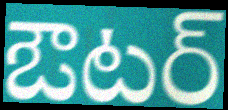
ఔటర్